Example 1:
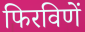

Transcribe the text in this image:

फिरविणें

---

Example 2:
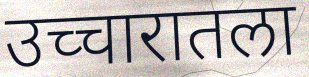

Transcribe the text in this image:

उच्चारातला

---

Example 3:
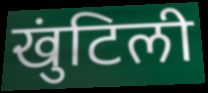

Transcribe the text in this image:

खुंटिली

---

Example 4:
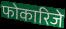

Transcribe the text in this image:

फोकारिजे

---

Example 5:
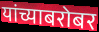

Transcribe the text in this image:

यांच्याबरोबर